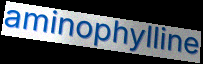
aminophylline